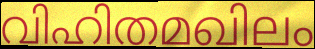
വിഹിതമഖിലം